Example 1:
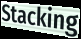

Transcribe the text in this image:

Stacking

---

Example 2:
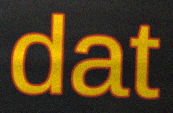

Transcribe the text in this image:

dat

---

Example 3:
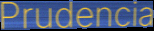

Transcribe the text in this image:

Prudencia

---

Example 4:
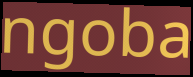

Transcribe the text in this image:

ngoba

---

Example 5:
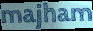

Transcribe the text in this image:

majham